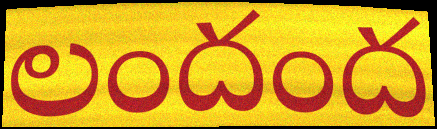
లందంద